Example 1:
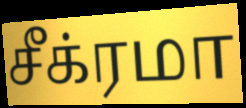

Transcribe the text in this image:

சீக்ரமா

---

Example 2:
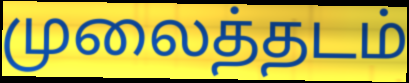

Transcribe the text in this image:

முலைத்தடம்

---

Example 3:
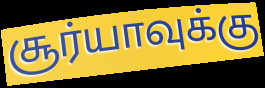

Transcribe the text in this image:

சூர்யாவுக்கு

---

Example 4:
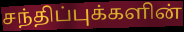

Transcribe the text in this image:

சந்திப்புக்களின்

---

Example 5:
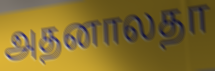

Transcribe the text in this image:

அதனாலதா